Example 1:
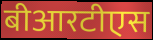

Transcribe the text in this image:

बीआरटीएस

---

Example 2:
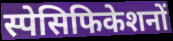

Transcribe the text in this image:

स्पेसिफिकेशनों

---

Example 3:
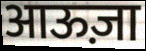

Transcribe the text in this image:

आऊज़ा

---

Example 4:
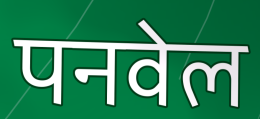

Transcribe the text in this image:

पनवेल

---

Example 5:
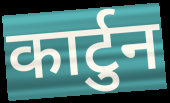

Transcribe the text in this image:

कार्टुन